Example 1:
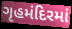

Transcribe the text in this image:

ગૃહમંદિરમાં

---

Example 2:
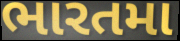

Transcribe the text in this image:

ભારતમા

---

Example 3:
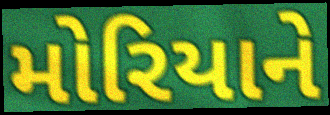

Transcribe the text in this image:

મોરિયાને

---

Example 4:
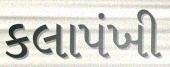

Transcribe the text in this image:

કલાપંખી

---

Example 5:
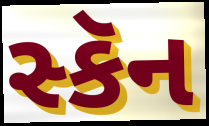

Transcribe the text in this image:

સ્કૅન